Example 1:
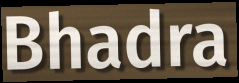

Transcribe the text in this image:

Bhadra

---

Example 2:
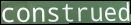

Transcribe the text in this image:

construed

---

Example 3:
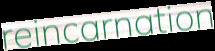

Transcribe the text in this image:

reincarnation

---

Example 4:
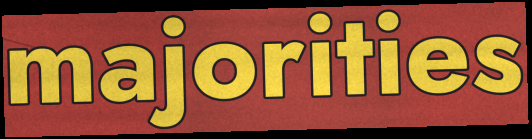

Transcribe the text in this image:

majorities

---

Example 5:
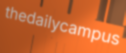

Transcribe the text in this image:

thedailycampus